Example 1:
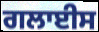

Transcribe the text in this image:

ਗਲਾਈਸ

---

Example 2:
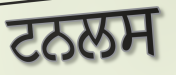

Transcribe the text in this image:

ਟਨਲਸ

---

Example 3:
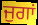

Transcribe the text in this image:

ਜੁਗਾਂ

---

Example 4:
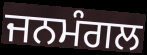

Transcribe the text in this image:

ਜਨਮੰਗਲ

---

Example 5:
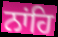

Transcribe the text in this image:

ਨਾਂਹਿ